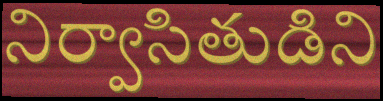
నిర్వాసితుడిని